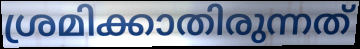
ശ്രമിക്കാതിരുന്നത്